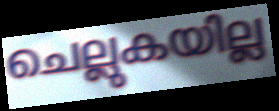
ചെല്ലുകയില്ല